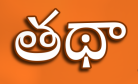
తథా